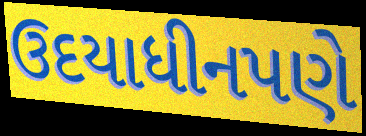
ઉદયાધીનપણે